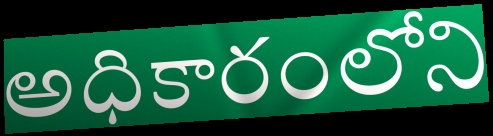
అధికారంలోని